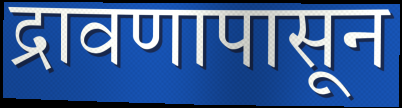
द्रावणापासून